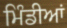
ਮਿੰਡੀਆਂ